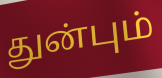
துன்பும்